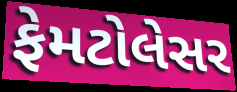
ફેમટોલેસર